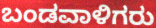
ಬಂಡವಾಳಿಗರು